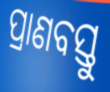
ପ୍ରାଣବସ୍ତୁ